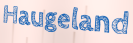
Haugeland